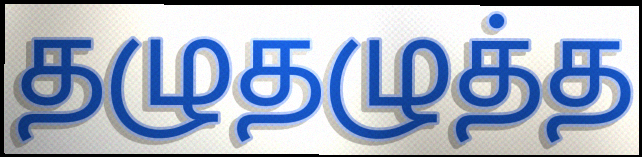
தழுதழுத்த